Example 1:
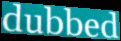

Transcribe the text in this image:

dubbed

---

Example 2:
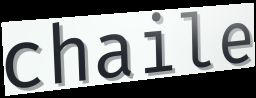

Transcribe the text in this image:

chaile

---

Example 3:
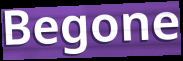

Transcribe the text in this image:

Begone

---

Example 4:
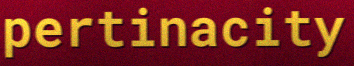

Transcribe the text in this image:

pertinacity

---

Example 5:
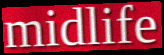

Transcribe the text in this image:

midlife